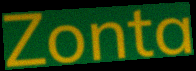
Zonta